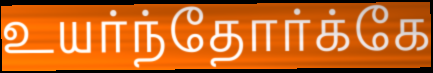
உயர்ந்தோர்க்கே